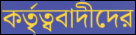
কর্তৃত্ববাদীদের